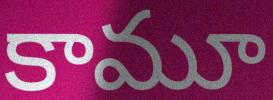
కామూ